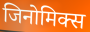
जिनोमिक्स